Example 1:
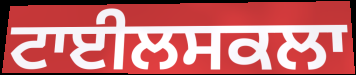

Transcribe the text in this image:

ਟਾਈਲਸਕਲਾ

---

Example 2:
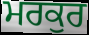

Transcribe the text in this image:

ਮਰਕੁਰ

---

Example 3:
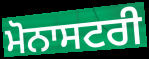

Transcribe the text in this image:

ਮੋਨਾਸਟਰੀ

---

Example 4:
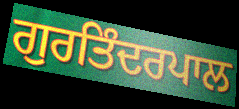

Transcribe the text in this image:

ਗੁਰਤਿੰਦਰਪਾਲ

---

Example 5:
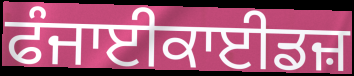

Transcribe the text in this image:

ਫੰਜਾਈਕਾਈਡਜ਼